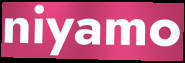
niyamo